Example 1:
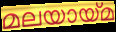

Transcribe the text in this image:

മലയായ്മ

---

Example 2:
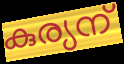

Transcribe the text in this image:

കുര്യന്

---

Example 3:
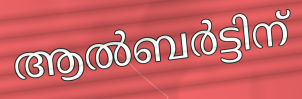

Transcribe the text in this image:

ആൽബർട്ടിന്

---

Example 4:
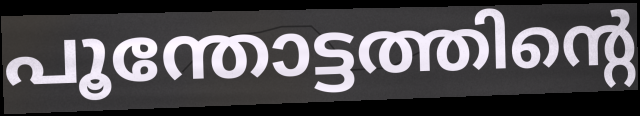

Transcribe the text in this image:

പൂന്തോട്ടത്തിന്റെ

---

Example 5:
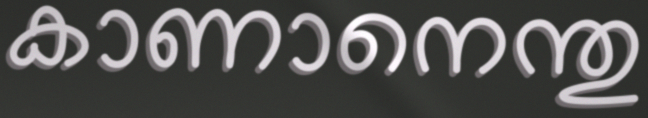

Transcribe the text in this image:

കാണാനെന്തു